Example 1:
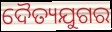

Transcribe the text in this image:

ଦୈତ୍ୟଯୁଗର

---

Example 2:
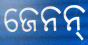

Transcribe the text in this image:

ଜେନନ୍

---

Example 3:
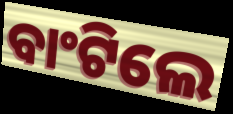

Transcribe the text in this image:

ବାଂଟିଲେ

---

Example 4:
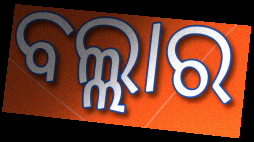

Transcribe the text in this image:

ବଲ୍ଲାର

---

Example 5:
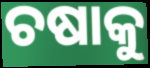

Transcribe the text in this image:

ଚଷାକୁ